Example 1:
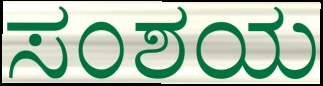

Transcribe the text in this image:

ಸಂಶಯ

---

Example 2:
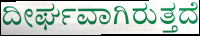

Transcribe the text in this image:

ದೀರ್ಘವಾಗಿರುತ್ತದೆ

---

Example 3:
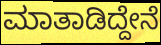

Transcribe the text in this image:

ಮಾತಾಡಿದ್ದೇನೆ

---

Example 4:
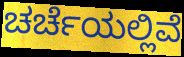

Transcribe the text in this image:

ಚರ್ಚೆಯಲ್ಲಿವೆ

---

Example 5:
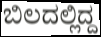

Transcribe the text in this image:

ಬಿಲದಲ್ಲಿದ್ದ